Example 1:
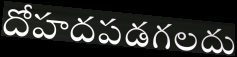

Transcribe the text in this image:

దోహదపడగలదు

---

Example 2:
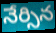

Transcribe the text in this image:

నేర్సిన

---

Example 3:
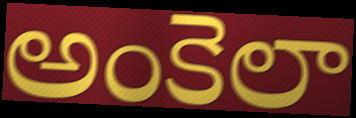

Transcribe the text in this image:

అంకెలా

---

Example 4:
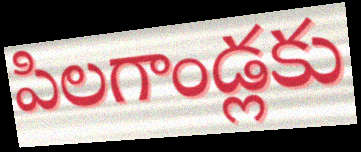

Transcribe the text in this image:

పిలగాండ్లకు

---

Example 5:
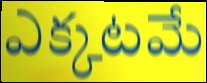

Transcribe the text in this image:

ఎక్కటమే